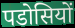
पडोसियों